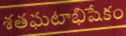
శతఘటాభిషేకం